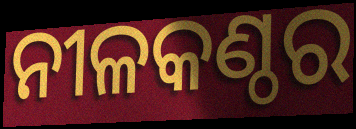
ନୀଳକଣ୍ଠର